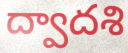
ద్వాదశి